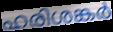
ഹരിശങ്കർ